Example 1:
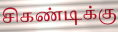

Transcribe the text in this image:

சிகண்டிக்கு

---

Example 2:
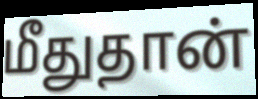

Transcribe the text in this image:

மீதுதான்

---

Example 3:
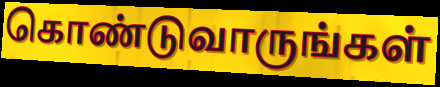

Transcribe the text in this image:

கொண்டுவாருங்கள்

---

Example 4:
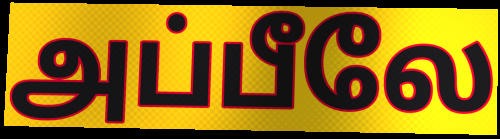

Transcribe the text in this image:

அப்பீலே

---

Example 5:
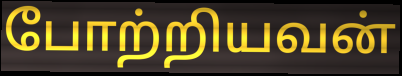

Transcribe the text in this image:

போற்றியவன்